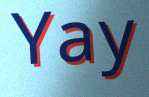
Yay